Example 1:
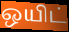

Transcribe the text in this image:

ஒயிட்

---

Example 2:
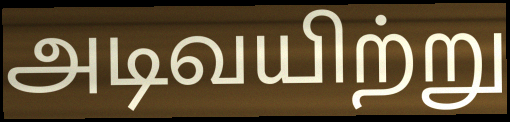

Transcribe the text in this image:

அடிவயிற்று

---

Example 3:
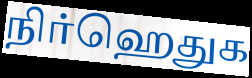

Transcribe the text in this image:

நிர்ஹெதுக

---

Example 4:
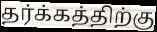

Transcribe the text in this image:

தர்க்கத்திற்கு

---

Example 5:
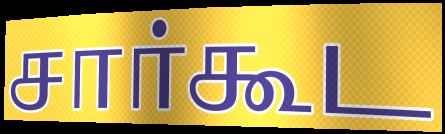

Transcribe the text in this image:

சார்கூட